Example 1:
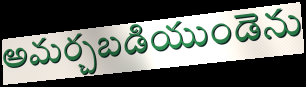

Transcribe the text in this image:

అమర్చబడియుండెను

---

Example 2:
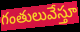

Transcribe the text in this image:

గంతులువేస్తూ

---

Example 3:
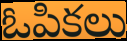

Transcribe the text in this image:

ఓపికలు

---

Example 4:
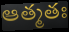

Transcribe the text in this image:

ఆత్మతః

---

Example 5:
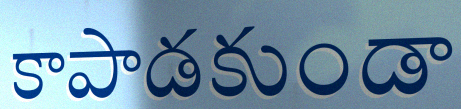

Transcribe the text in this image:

కాపాడకుండా